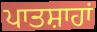
ਪਾਤਸ਼ਾਹਾਂ